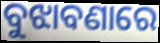
ବୁଝାବଣାରେ